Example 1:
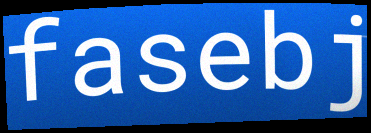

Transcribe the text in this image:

fasebj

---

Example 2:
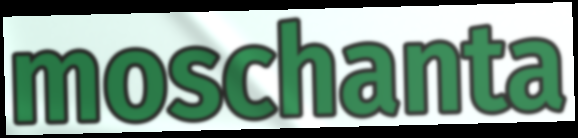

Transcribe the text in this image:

moschanta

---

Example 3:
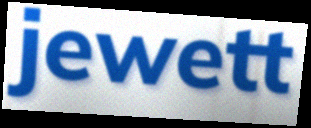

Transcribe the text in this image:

jewett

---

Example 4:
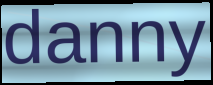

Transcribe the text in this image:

danny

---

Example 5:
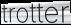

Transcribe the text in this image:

trotter